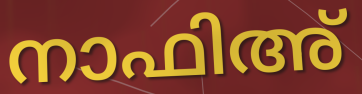
നാഫിഅ്